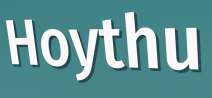
Hoythu